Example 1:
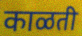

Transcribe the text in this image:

काळती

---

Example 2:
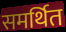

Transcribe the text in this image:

समर्थित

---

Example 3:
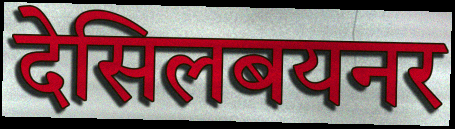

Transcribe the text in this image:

देसिलबयनर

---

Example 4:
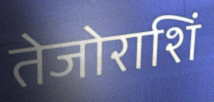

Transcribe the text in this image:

तेजोराशिं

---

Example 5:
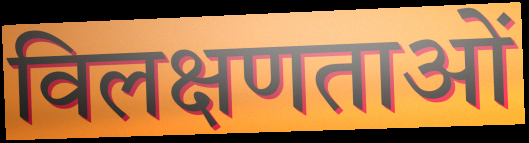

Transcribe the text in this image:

विलक्षणताओं